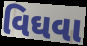
વિઘવા